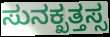
ಸುನಕ್ಖತ್ತಸ್ಸ